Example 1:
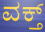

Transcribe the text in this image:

ವಕ್ತ್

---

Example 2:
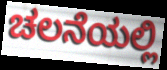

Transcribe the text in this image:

ಚಲನೆಯಲ್ಲಿ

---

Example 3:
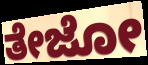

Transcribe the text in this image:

ತೇಜೋ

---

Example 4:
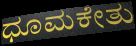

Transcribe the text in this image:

ಧೂಮಕೇತು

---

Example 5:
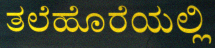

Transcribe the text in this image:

ತಲೆಹೊರೆಯಲ್ಲಿ